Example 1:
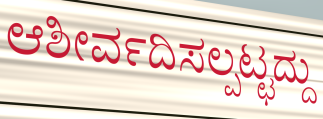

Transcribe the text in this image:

ಆಶೀರ್ವದಿಸಲ್ಪಟ್ಟದ್ದು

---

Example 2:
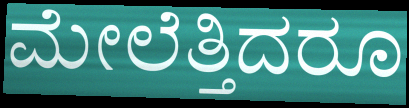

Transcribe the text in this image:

ಮೇಲೆತ್ತಿದರೂ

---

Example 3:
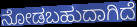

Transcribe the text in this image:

ನೋಡಬಹುದಾಗಿದೆ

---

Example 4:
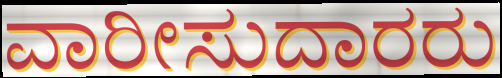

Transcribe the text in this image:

ವಾರೀಸುದಾರರು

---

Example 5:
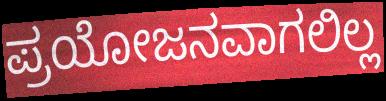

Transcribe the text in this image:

ಪ್ರಯೋಜನವಾಗಲಿಲ್ಲ